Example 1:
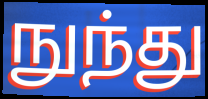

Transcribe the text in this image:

நுந்து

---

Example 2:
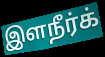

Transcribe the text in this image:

இளநீர்க்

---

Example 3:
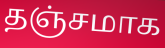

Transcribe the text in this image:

தஞ்சமாக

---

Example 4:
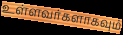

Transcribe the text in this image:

உள்ளவர்களாகவும்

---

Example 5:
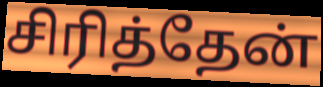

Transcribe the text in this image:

சிரித்தேன்